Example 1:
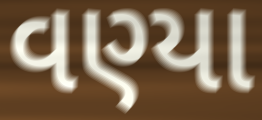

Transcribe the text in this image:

વણ્યા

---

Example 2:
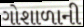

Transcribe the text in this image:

ગોશાળાની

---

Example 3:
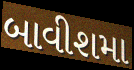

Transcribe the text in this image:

બાવીશમા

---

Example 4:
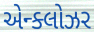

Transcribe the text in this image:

એન્ક્લોઝર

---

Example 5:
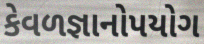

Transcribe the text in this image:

કેવળજ્ઞાનોપયોગ